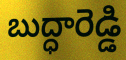
బుద్ధారెడ్డి